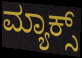
ಮ್ಯಾಕ್ಸ್